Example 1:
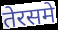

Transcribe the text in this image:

तेरसमे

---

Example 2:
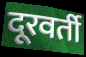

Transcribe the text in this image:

दूरवर्ती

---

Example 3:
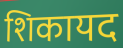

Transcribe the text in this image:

शिकायद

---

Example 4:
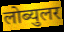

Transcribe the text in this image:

लोब्युलर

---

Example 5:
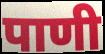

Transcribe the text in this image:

पाणी